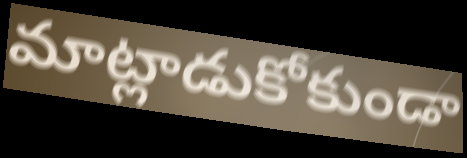
మాట్లాడుకోకుండా